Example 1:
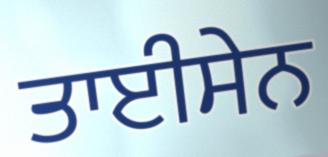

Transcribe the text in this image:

ਤਾਈਸੇਨ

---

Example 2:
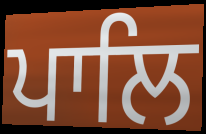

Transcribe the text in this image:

ਪਾਲਿ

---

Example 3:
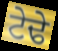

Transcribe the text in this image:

ਟੇਢੇ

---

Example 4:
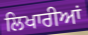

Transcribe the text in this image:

ਲਿਖਾਰੀਆਂ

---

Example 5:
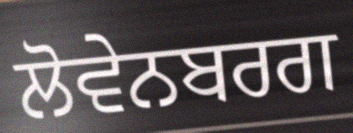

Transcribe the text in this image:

ਲੋਵੇਨਬਰਗ